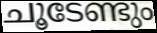
ചൂടേണ്ടും